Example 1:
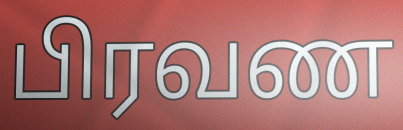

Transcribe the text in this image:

பிரவண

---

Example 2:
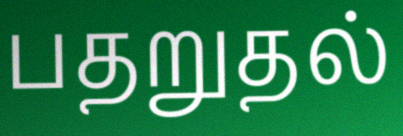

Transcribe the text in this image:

பதறுதல்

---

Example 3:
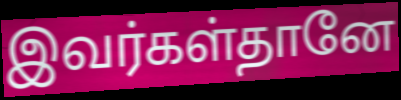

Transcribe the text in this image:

இவர்கள்தானே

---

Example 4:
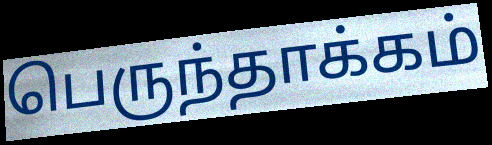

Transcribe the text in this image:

பெருந்தாக்கம்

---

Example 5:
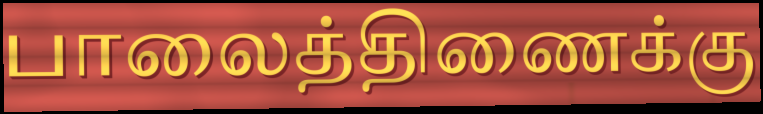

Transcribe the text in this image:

பாலைத்திணைக்கு